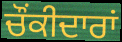
ਚੌਂਕੀਦਾਰਾਂ